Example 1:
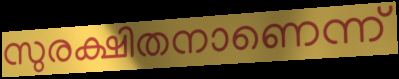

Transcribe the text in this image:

സുരക്ഷിതനാണെന്ന്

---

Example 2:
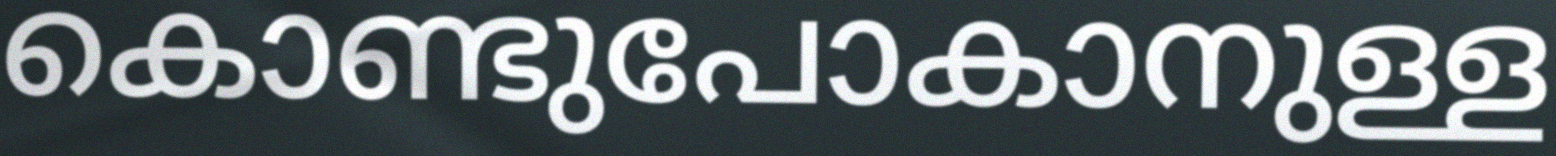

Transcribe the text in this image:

കൊണ്ടുപോകാനുള്ള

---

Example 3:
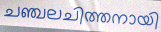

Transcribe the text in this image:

ചഞ്ചലചിത്തനായി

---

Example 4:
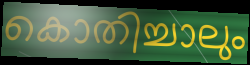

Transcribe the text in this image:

കൊതിച്ചാലും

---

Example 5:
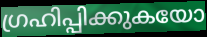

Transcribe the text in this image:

ഗ്രഹിപ്പിക്കുകയോ